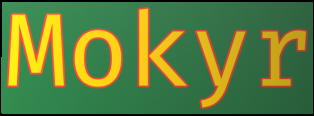
Mokyr